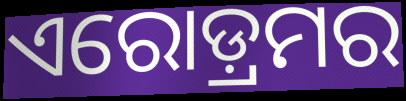
ଏରୋଡ଼୍ରମର